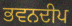
ਭਵਨਦੀਪ